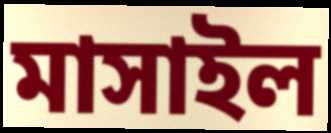
মাসাইল